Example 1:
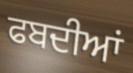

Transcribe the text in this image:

ਫਬਦੀਆਂ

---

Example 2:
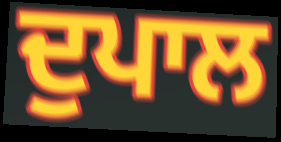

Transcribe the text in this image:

ਦੁਪਾਲ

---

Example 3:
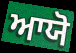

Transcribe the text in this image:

ਆਯੋ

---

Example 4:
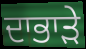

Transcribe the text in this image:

ਦਾਭਾੜੇ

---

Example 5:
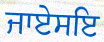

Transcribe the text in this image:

ਜਾਏਸਇ